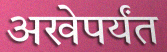
अखेपर्यंत